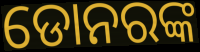
ଡୋନରଙ୍କ